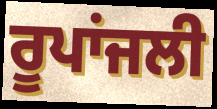
ਰੂਪਾਂਜਲੀ